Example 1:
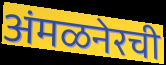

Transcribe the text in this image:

अंमळनेरची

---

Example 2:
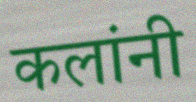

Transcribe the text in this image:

कलांनी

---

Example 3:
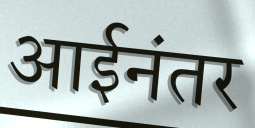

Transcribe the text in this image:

आईनंतर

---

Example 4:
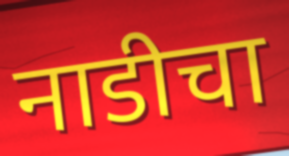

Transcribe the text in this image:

नाडीचा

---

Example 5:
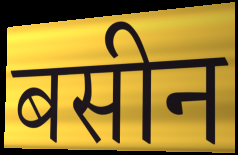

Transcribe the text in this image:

बसीन